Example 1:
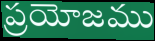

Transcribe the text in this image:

ప్రయోజము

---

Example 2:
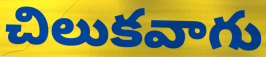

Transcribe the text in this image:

చిలుకవాగు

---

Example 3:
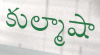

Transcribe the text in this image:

కుల్మాషా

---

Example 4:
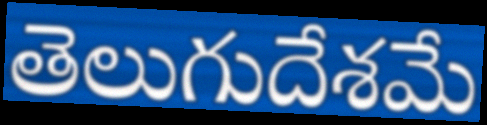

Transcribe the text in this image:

తెలుగుదేశమే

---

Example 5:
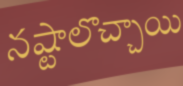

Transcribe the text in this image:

నష్టాలొచ్చాయి